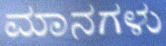
ಮಾನಗಳು